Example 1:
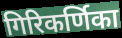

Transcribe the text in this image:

गिरिकर्णिका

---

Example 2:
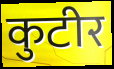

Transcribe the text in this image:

कुटीर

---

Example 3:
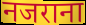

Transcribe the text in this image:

नजराना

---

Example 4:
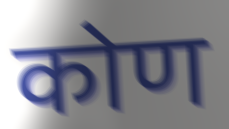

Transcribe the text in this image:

कोण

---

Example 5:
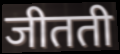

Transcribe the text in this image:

जीतती